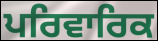
ਪਰਿਵਾਰਿਕ